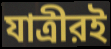
যাত্রীরই